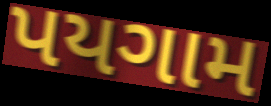
પયગામ